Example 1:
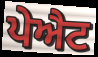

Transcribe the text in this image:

ਪੇਐਟ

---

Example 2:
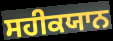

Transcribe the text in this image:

ਸਹੀਕਯਾਨ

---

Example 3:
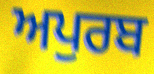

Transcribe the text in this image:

ਅਪੁਰਬ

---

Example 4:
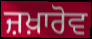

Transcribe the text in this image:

ਜ਼ਖ਼ਾਰੋਵ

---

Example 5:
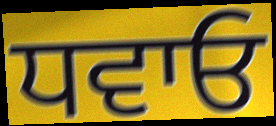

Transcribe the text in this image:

ਧਵਾਓ